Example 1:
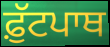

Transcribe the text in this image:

ਫ਼ੁੱਟਪਾਥ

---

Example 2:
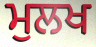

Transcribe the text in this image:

ਮੁਲਖ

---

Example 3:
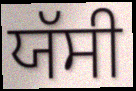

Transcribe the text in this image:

ਯੱਸੀ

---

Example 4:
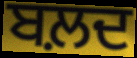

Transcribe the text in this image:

ਬਲ਼ਦ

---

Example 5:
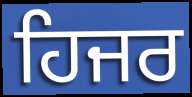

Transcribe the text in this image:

ਹਿਜਰ